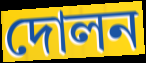
দোলন